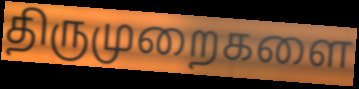
திருமுறைகளை